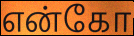
என்கோ